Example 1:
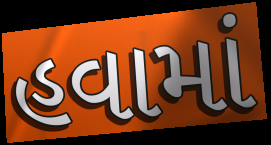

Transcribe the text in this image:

હવામાં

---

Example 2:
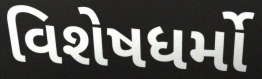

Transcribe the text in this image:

વિશેષધર્મો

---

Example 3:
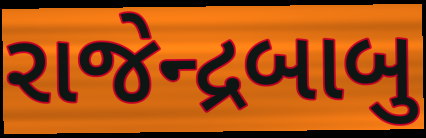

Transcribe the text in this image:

રાજેન્દ્રબાબુ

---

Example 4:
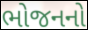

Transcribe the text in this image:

ભોજનનો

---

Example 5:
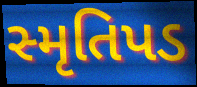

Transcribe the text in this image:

સ્મૃતિપડ